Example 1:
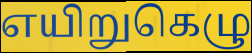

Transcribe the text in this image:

எயிறுகெழு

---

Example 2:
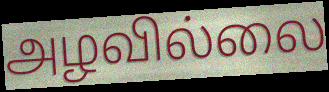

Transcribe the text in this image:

அழவில்லை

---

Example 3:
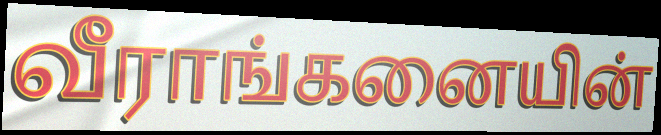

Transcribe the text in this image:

வீராங்கனையின்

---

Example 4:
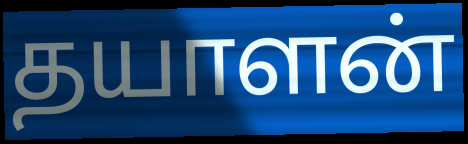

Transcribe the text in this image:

தயாளன்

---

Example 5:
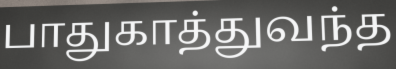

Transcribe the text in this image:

பாதுகாத்துவந்த